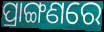
ପ୍ରାଙ୍ଗଣରେ